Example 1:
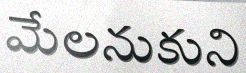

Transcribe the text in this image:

మేలనుకుని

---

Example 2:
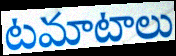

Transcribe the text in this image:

టమాటాలు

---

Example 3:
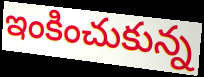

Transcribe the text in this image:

ఇంకించుకున్న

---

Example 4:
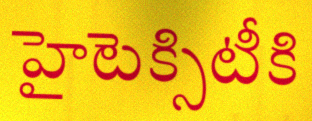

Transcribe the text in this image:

హైటెక్సిటీకి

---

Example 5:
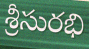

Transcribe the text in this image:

శ్రీసురభి